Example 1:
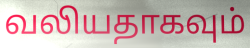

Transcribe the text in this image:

வலியதாகவும்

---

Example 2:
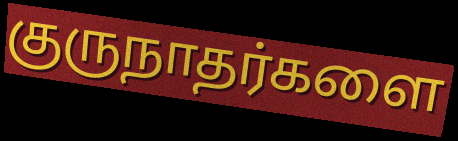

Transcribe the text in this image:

குருநாதர்களை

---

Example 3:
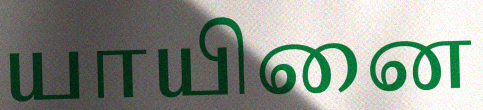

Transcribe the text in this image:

யாயினை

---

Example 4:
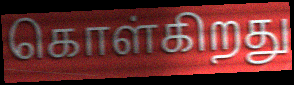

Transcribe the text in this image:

கொள்கிறது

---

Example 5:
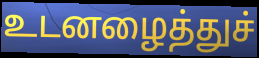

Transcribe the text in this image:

உடனழைத்துச்